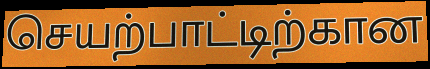
செயற்பாட்டிற்கான